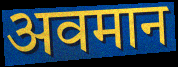
अवमान